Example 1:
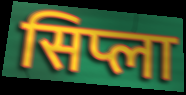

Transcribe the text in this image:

सिप्ला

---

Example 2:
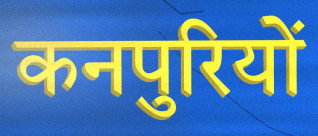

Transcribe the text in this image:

कनपुरियों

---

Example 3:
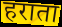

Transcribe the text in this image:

हराता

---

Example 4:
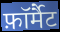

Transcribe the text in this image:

फ़ॉर्मैट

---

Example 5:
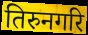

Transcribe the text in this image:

तिरुनगरि